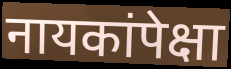
नायकांपेक्षा